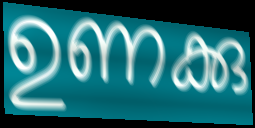
ഉണക്കു